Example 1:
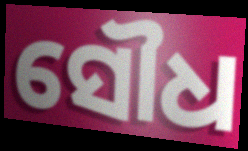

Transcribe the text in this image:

ସୌଧ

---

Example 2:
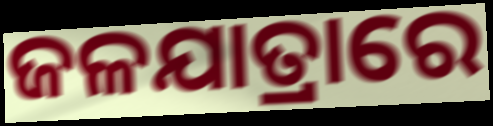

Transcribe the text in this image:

ଜଳଯାତ୍ରାରେ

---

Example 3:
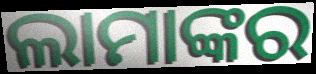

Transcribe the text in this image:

ଲାମାଙ୍କର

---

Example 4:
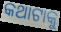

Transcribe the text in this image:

କଥାଟାକୁ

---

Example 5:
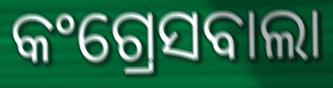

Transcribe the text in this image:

କଂଗ୍ରେସବାଲା